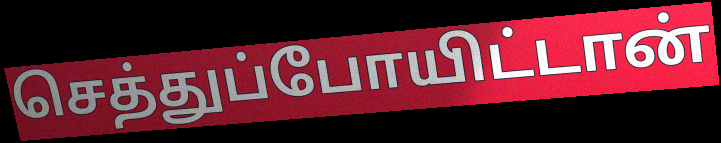
செத்துப்போயிட்டான்